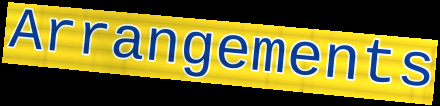
Arrangements